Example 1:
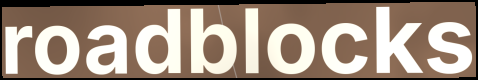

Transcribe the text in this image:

roadblocks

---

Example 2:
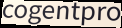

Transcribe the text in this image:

cogentpro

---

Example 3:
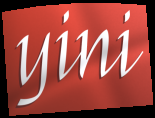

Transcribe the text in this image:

yini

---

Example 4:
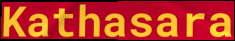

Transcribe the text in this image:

Kathasara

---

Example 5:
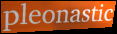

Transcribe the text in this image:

pleonastic